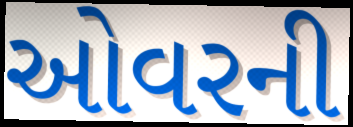
ઓવરની